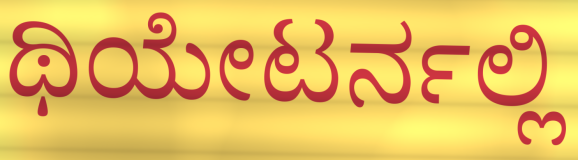
ಥಿಯೇಟರ್ನಲ್ಲಿ